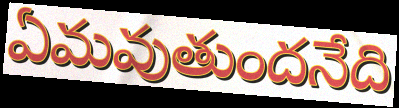
ఏమవుతుందనేది